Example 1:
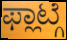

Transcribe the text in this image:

ಫ್ಲಾಟ್ಗೆ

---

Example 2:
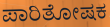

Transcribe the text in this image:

ಪಾರಿತೋಷಕ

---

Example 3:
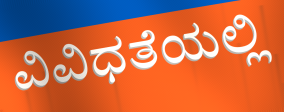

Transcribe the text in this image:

ವಿವಿಧತೆಯಲ್ಲಿ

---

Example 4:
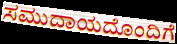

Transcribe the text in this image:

ಸಮುದಾಯದೊಂದಿಗೆ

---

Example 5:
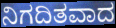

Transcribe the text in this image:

ನಿಗದಿತವಾದ